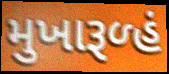
મુખારૂળ્હં